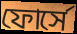
ফোর্সে